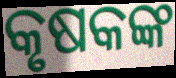
କୃଷକଙ୍କ